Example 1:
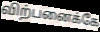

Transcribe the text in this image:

விற்பனைக்கே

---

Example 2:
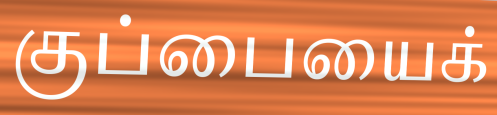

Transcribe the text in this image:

குப்பையைக்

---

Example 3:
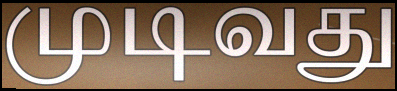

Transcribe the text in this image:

முடிவது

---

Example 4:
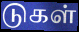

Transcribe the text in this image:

டுகள்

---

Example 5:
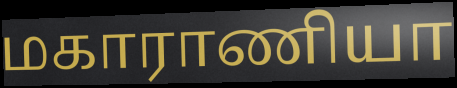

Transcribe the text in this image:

மகாராணியா